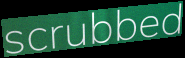
scrubbed